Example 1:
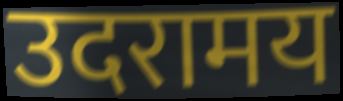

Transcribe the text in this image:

उदरामय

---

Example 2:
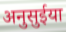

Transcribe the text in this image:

अनुसुईया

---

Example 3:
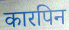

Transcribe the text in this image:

कारपिन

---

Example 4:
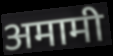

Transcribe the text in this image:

अमामी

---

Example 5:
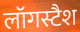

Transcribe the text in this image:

लॉगस्टैश